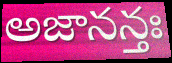
అజానన్తః